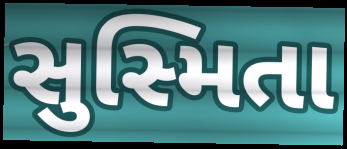
સુસ્મિતા